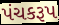
પંચકરૂપ